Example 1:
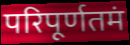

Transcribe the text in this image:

परिपूर्णतमं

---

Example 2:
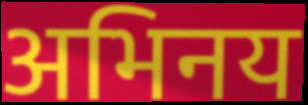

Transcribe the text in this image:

अभिनय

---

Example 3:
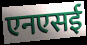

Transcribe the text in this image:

एनएसई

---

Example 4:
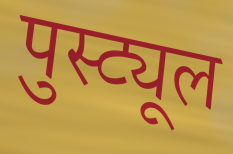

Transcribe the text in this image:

पुस्ट्यूल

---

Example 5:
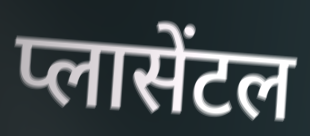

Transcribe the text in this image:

प्लासेंटल